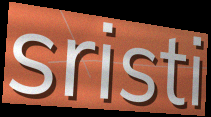
sristi